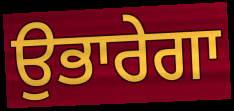
ਉਭਾਰੇਗਾ